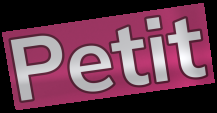
Petit